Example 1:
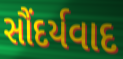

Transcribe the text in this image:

સૌંદર્યવાદ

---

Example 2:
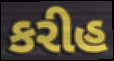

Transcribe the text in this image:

કરીહ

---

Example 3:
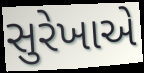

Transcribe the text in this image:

સુરેખાએ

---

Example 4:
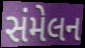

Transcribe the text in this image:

સંમેલન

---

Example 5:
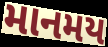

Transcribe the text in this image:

માનમય